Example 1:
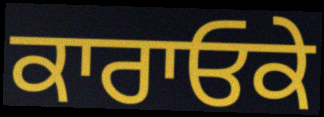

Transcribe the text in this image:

ਕਾਰਾਓਕੇ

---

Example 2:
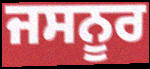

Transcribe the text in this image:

ਜਸਨੂਰ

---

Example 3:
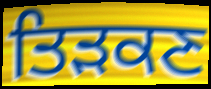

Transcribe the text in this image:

ਤਿੜਕਣ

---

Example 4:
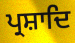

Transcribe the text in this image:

ਪ੍ਰਸ਼ਾਦਿ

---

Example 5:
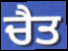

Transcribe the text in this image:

ਚੈਤ